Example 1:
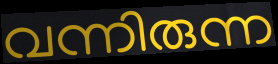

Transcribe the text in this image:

വന്നിരുന്ന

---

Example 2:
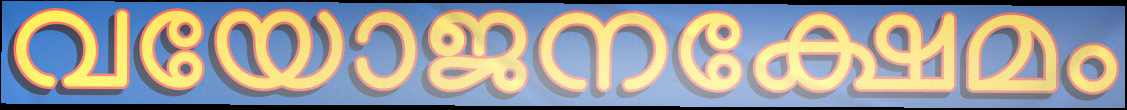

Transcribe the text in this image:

വയോജനക്ഷേമം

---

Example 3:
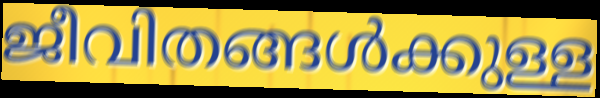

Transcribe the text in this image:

ജീവിതങ്ങൾക്കുള്ള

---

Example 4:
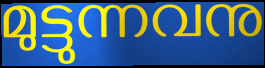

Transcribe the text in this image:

മുട്ടുന്നവനു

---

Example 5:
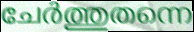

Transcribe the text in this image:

ചേർത്തുതന്നെ